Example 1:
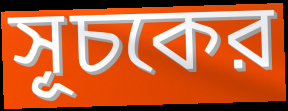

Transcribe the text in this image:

সূচকের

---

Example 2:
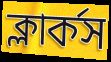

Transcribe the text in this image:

ক্লার্কস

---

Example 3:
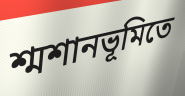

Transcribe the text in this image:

শ্মশানভূমিতে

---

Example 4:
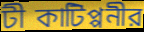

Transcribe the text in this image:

টীকাটিপ্পনীর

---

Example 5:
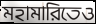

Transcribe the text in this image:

মহামারিতেও